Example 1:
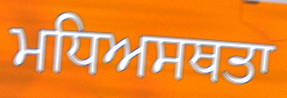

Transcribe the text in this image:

ਮਧਿਅਸਥਤਾ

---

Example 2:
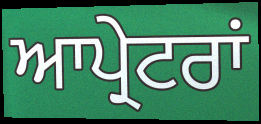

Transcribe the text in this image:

ਆਪ੍ਰੇਟਰਾਂ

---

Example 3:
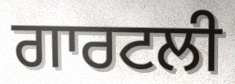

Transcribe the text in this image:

ਗਾਰਟਲੀ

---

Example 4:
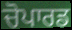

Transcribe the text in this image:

ਚੋਪਾਰਡ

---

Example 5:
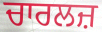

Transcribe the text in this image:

ਚਾਰਲਜ਼